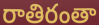
రాతిరంతా